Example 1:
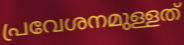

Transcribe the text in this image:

പ്രവേശനമുള്ളത്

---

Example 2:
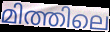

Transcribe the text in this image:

മിത്തിലെ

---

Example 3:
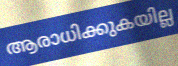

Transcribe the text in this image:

ആരാധിക്കുകയില്ല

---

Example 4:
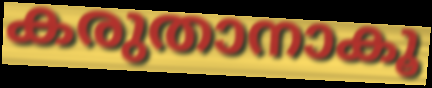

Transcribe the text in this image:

കരുതാനാകൂ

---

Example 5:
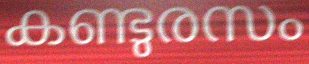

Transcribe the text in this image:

കണ്ടുരസം